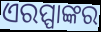
ଏରପ୍ପାଙ୍କର